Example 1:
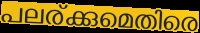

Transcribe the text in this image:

പലര്ക്കുമെതിരെ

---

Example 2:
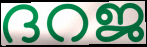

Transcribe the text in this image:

ദറജ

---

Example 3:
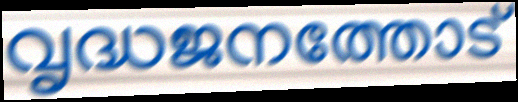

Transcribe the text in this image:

വൃദ്ധജനത്തോട്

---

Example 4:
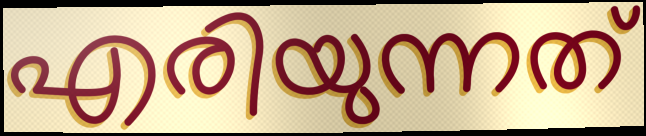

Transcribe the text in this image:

എരിയുന്നത്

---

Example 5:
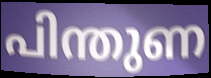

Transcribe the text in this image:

പിന്തുണ